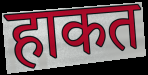
हाकत